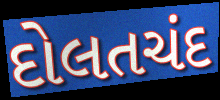
દોલતચંદ